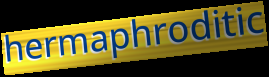
hermaphroditic